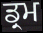
ਡ੍ਰਮ